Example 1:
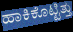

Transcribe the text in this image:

ಹಾಕಿಕೊಟ್ಟಿತ್ತು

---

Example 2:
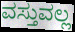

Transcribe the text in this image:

ವಸ್ತುವಲ್ಲ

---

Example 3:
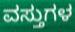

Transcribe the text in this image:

ವಸ್ತುಗಳ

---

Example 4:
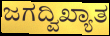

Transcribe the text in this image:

ಜಗದ್ವಿಖ್ಯಾತ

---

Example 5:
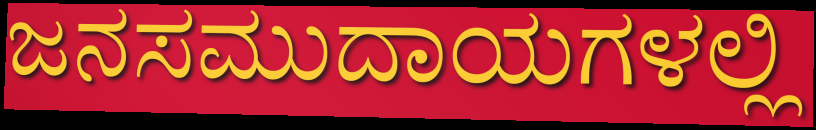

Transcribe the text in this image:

ಜನಸಮುದಾಯಗಳಲ್ಲಿ